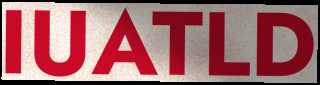
IUATLD